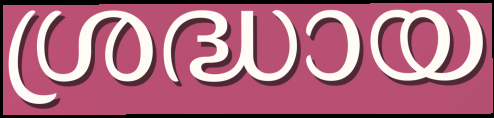
ശ്രദ്ധായ